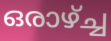
ഒരാഴ്ച്ച